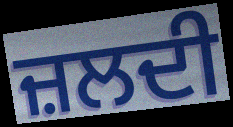
ਜ਼ਲਦੀ